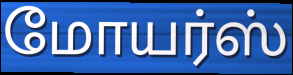
மோயர்ஸ்